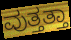
ವುತ್ತತ್ತಾ